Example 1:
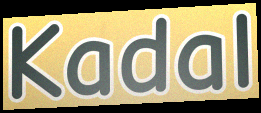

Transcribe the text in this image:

Kadal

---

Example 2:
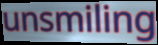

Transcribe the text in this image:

unsmiling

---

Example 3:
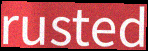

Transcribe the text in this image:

rusted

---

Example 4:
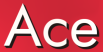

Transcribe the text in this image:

Ace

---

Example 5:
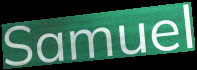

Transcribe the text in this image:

Samuel